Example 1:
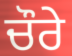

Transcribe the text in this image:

ਚੌਰੇ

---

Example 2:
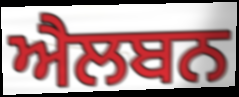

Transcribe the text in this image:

ਐਲਬਨ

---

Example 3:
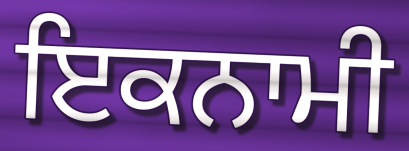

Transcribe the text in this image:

ਇਕਨਾਮੀ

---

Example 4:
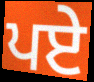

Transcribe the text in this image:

ਪਏ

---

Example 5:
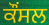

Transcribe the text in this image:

ਕੌਂਸਲ